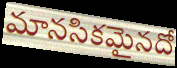
మానసికమైనదో